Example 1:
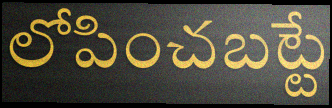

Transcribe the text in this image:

లోపించబట్టే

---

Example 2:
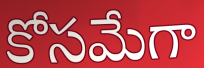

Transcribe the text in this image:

కోసమేగా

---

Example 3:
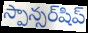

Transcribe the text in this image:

స్పాన్సర్‌షిప్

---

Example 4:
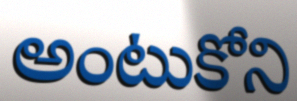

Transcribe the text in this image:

అంటుకోని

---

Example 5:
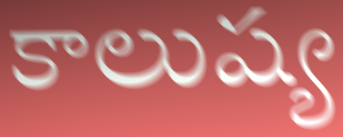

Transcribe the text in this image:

కాలుష్య